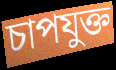
চাপযুক্ত